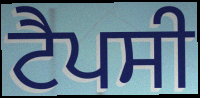
ਟੈਪਸੀ